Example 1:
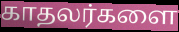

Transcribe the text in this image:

காதலர்களை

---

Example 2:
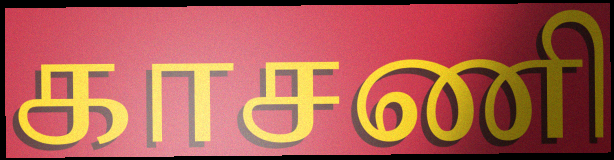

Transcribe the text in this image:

காசணி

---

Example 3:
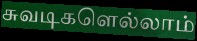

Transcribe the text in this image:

சுவடிகளெல்லாம்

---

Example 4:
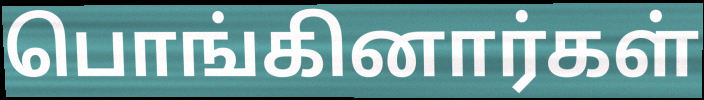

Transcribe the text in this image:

பொங்கினார்கள்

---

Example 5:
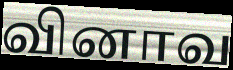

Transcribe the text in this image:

வினாவ